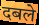
दबले